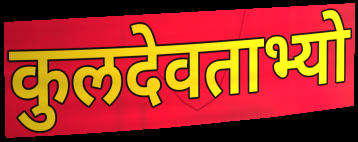
कुलदेवताभ्यो